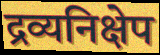
द्रव्यनिक्षेप